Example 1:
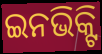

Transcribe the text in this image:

ଇନଭିକ୍ଟି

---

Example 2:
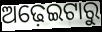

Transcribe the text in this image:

ଅଢ଼େଇଟାରୁ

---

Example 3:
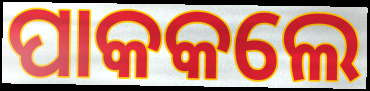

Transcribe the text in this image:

ପାକକଲେ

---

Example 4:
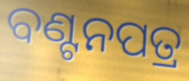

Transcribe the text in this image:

ବଣ୍ଟନପତ୍ର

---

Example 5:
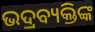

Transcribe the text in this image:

ଭଦ୍ରବ୍ୟକ୍ତିଙ୍କ